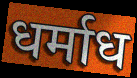
धर्माध